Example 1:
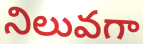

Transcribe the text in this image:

నిలువగా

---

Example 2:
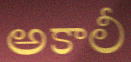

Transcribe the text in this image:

అకాలీ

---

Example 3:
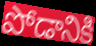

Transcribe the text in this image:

పోడానికి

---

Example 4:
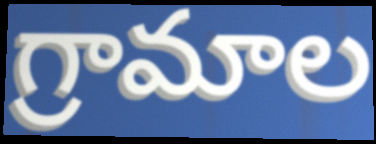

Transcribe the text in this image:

గ్రామాల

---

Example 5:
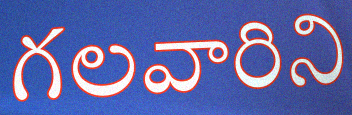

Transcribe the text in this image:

గలవారిని